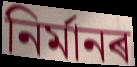
নিৰ্মানৰ